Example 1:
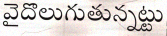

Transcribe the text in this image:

వైదొలుగుతున్నట్టు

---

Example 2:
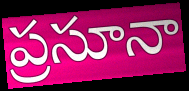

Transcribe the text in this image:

ప్రసూనా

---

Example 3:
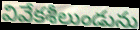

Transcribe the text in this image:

వివేకశీలుండును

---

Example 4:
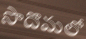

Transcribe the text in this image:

సొదొమలో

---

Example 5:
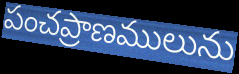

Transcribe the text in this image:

పంచప్రాణములును